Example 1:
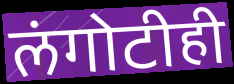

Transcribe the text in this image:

लंगोटीही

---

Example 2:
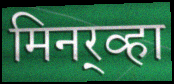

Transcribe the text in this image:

मिनर्व्हा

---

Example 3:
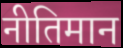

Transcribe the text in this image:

नीतिमान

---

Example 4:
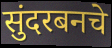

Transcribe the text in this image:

सुंदरबनचे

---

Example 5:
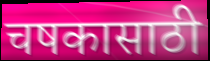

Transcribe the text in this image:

चषकासाठी